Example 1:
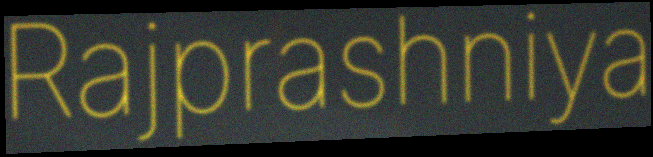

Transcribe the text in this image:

Rajprashniya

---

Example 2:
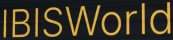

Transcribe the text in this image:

IBISWorld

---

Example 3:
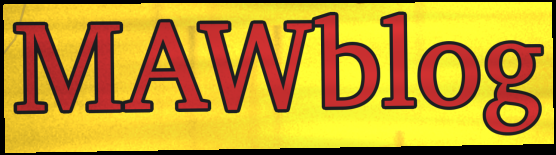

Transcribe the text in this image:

MAWblog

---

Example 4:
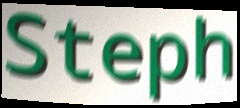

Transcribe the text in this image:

Steph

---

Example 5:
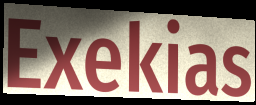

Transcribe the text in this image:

Exekias